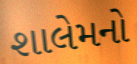
શાલેમનો